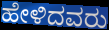
ಹೇಳಿದವರು